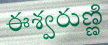
ఈశ్వరుణ్ణి